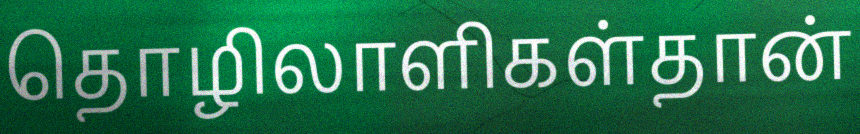
தொழிலாளிகள்தான்